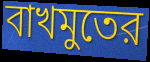
বাখমুতের